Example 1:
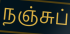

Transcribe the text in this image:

நஞ்சுப்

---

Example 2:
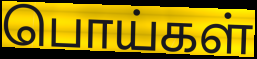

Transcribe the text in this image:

பொய்கள்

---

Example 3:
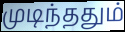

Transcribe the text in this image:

முடிந்ததும்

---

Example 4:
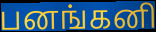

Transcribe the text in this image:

பனங்கனி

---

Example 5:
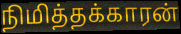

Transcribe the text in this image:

நிமித்தக்காரன்